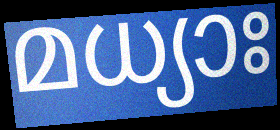
മധ്യാഃ